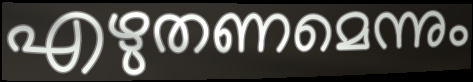
എഴുതണമെന്നും